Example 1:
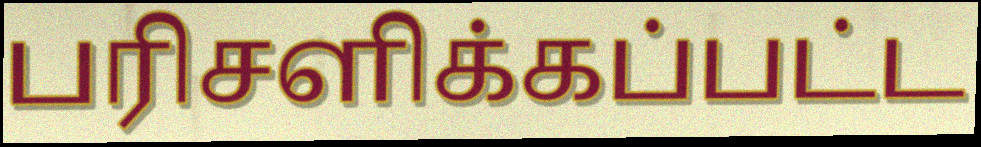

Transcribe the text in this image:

பரிசளிக்கப்பட்ட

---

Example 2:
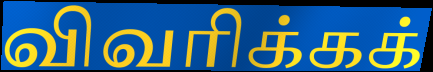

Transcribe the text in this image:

விவரிக்கக்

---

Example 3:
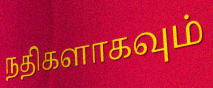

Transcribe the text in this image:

நதிகளாகவும்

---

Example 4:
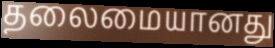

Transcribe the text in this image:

தலைமையானது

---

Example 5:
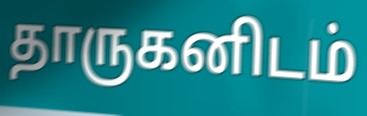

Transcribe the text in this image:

தாருகனிடம்